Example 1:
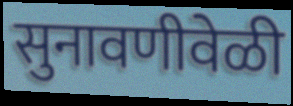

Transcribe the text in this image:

सुनावणीवेळी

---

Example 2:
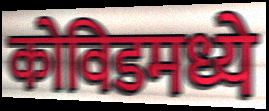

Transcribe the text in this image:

कोविडमध्ये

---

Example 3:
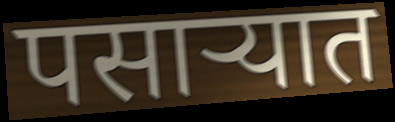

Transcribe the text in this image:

पसार्‍यात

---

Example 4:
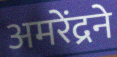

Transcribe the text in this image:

अमरेंद्रने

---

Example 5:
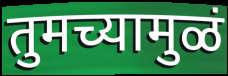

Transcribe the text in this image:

तुमच्यामुळं